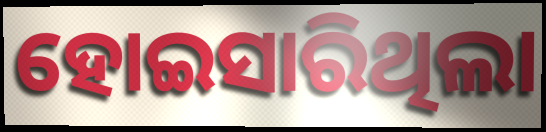
ହୋଇସାରିଥିଲା